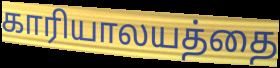
காரியாலயத்தை